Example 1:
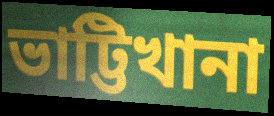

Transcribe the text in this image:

ভাট্টিখানা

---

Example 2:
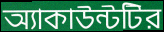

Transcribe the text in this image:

অ্যাকাউন্টটির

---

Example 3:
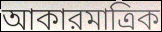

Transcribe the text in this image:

আকারমাত্রিক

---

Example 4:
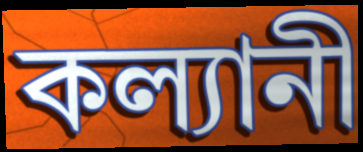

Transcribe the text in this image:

কল্যানী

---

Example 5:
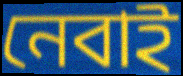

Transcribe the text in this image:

নেবাই